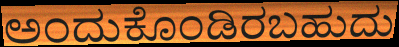
ಅಂದುಕೊಂಡಿರಬಹುದು